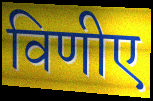
विणीए